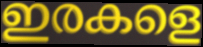
ഇരകളെ